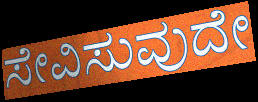
ಸೇವಿಸುವುದೇ